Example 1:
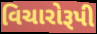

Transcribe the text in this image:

વિચારોરૂપી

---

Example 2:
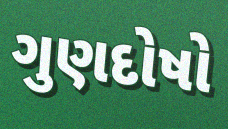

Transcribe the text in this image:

ગુણદોષો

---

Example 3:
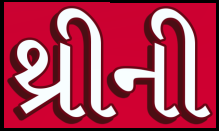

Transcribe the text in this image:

થ્રીની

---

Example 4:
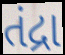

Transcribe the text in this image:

તંદ્રા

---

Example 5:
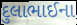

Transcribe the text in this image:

દુલાભાઈના